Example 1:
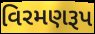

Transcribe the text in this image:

વિરમણરૂપ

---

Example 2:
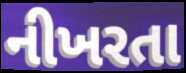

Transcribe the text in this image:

નીખરતા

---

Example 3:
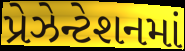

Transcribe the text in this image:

પ્રેઝેન્ટેશનમાં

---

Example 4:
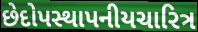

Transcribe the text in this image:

છેદોપસ્થાપનીયચારિત્ર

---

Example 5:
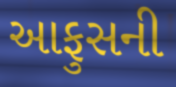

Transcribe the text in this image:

આફુસની